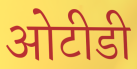
ओटीडी